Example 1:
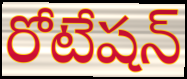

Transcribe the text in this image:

రోటేషన్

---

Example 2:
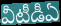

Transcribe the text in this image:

వీటీడీఏ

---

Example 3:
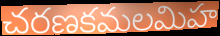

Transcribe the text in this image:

చరణకమలమిహ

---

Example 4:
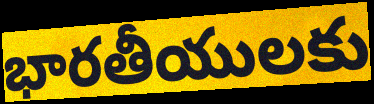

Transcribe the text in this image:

భారతీయులకు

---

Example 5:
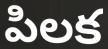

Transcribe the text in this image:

పిలక